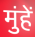
मुंहें